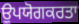
ਉਪਯੋਗਕਰਤਾ